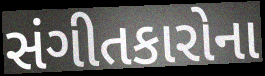
સંગીતકારોના